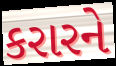
કરારને